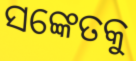
ସଙ୍କେତକୁ